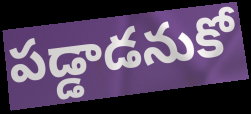
పడ్డాడనుకో